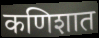
कणिशात